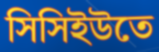
সিসিইউতে